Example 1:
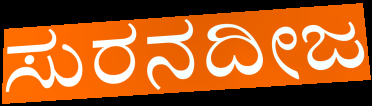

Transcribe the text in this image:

ಸುರನದೀಜ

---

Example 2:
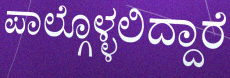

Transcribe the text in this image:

ಪಾಲ್ಗೊಳ್ಳಲಿದ್ದಾರೆ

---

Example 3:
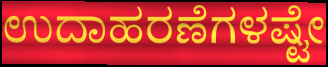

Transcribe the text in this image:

ಉದಾಹರಣೆಗಳಷ್ಟೇ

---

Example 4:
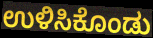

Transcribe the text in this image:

ಉಳಿಸಿಕೊಂಡು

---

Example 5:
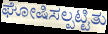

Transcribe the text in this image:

ಘೋಷಿಸಲ್ಪಟ್ಟಿತು